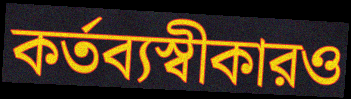
কর্তব্যস্বীকারও